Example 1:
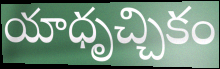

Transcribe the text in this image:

యాధృచ్చికం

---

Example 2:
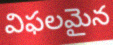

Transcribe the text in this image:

విఫలమైన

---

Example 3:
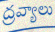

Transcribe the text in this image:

ద్రవ్యాలు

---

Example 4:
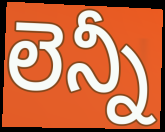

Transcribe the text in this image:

లెన్నీ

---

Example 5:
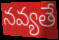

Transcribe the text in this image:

నవ్యతే